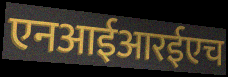
एनआईआरईएच